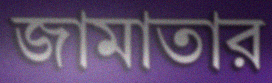
জামাতার